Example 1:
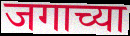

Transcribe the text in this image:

जगाच्या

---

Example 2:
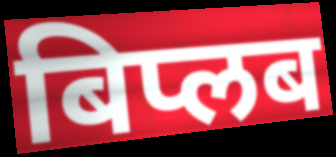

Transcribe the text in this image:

बिप्लब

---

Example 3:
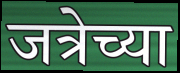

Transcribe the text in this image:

जत्रेच्या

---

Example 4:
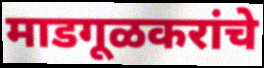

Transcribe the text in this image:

माडगूळकरांचे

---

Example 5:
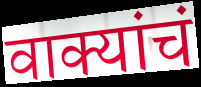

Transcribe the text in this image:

वाक्यांचं